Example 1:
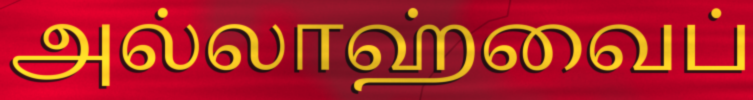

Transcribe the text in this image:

அல்லாஹ்வைப்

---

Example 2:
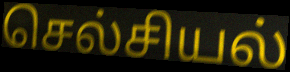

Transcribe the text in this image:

செல்சியல்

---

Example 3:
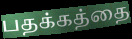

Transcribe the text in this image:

பதக்கத்தை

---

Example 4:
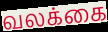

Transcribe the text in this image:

வலக்கை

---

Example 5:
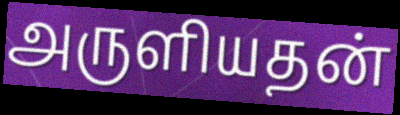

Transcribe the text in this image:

அருளியதன்